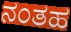
ನಂತಹ